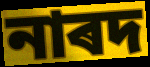
নাৰদ